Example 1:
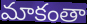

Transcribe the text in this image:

మాకంతా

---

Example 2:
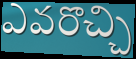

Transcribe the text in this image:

ఎవరొచ్చి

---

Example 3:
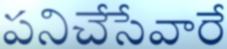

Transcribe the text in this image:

పనిచేసేవారే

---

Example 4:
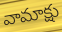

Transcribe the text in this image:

వామాక్షు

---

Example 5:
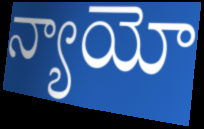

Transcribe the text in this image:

న్యాయో